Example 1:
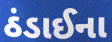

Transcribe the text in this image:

ઠંડાઈના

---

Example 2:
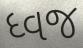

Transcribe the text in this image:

ધ્વજ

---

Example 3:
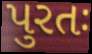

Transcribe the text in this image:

પુરતઃ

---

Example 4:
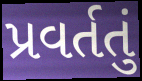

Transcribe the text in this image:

પ્રવર્તતું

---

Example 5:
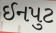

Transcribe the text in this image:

ઈનપુટ